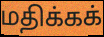
மதிக்கக்